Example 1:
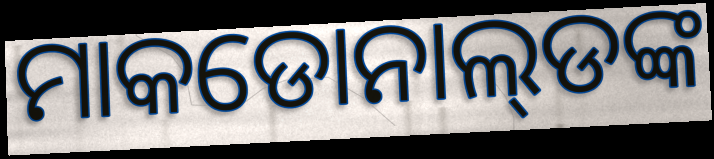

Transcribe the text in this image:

ମାକଡୋନାଲ୍‍ଡଙ୍କ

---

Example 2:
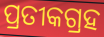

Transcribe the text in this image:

ପ୍ରତୀକଗ୍ରହ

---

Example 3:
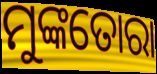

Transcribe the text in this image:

ମୁଙ୍କତୋରା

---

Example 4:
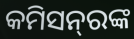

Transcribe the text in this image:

କମିସନ୍‍ରଙ୍କ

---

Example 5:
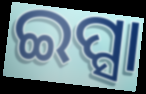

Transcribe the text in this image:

ଇପ୍ସା